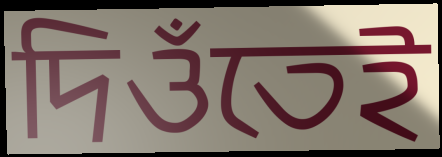
দিওঁতেই